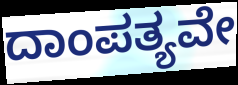
ದಾಂಪತ್ಯವೇ